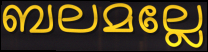
ബലമല്ലേ